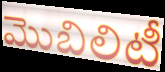
మొబిలిటీ